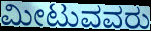
ಮೀಟುವವರು